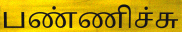
பண்ணிச்சு